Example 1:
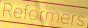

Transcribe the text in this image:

Reformers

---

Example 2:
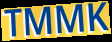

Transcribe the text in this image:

TMMK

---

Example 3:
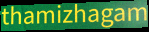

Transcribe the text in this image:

thamizhagam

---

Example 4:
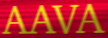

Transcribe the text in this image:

AAVA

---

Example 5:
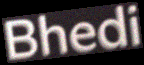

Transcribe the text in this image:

Bhedi